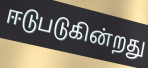
ஈடுபடுகின்றது